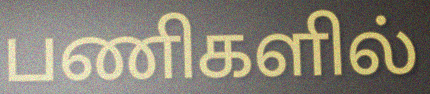
பணிகளில்